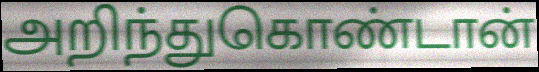
அறிந்துகொண்டான்